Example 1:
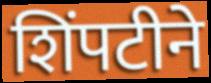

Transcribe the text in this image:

शिंपटीने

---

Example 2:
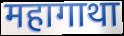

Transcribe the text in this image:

महागाथा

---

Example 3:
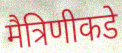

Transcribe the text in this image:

मैत्रिणीकडे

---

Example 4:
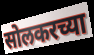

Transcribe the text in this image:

सोलकरच्या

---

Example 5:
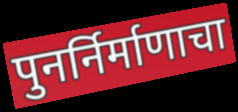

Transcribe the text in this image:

पुनर्निर्माणाचा